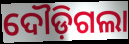
ଦୌଡ଼ିଗଲା